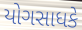
યોગસાધકે